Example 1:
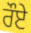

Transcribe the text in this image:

ਰੌਏ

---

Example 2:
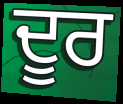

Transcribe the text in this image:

ਦੂਰ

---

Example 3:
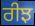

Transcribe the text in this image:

ਰੀਝ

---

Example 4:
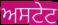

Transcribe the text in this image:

ਅਸਟੇਟ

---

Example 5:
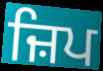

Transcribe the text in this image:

ਜ਼ਿਪ